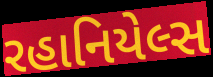
રહાનિયેલ્સ